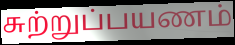
சுற்றுப்பயணம்